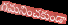
గమనించకుండా